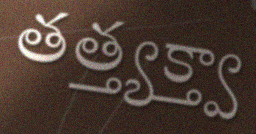
తత్త్యక్త్వా